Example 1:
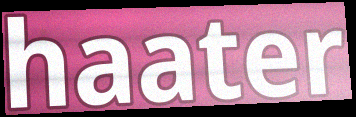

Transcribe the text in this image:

haater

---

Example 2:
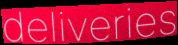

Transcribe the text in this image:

deliveries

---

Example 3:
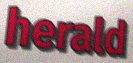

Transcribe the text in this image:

herald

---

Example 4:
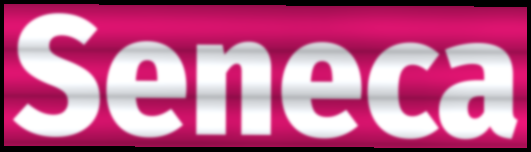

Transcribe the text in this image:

Seneca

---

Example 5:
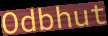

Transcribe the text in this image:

Odbhut